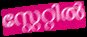
സ്റ്റേറ്റിൽ